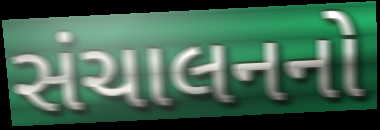
સંચાલનનો